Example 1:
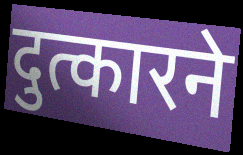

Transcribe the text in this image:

दुत्कारने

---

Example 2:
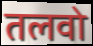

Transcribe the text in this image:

तलवो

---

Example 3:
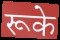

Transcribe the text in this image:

रूके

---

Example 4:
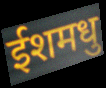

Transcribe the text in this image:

ईशमधु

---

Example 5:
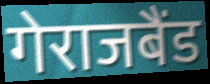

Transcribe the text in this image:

गेराजबैंड